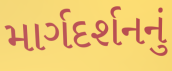
માર્ગદર્શનનું